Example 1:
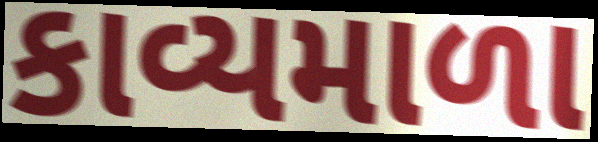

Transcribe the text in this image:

કાવ્યમાળા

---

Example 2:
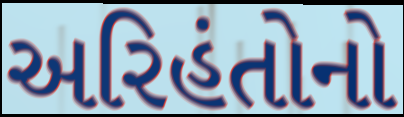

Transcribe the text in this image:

અરિહંતોનો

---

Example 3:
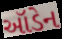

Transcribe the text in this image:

ઑડેન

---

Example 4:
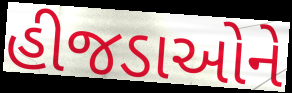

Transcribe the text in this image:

હીજડાઓને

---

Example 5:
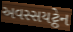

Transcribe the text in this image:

અવસ્સયટ્ઠેન